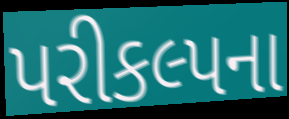
પરીકલ્પના